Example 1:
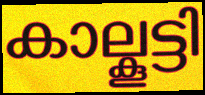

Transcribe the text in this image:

കാല്കൂട്ടി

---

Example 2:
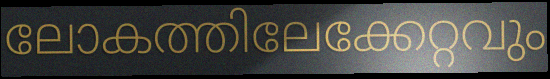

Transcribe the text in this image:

ലോകത്തിലേക്കേറ്റവും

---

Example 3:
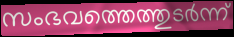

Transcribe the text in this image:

സംഭവത്തെത്തുടർന്ന്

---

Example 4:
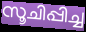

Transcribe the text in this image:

സൂചിപ്പിച്ച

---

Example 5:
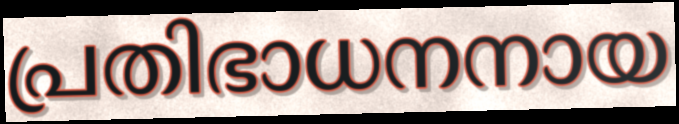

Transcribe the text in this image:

പ്രതിഭാധനനായ